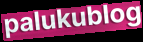
palukublog